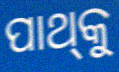
ପାଥ୍‌କୁ